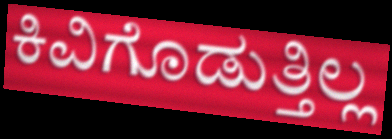
ಕಿವಿಗೊಡುತ್ತಿಲ್ಲ